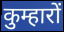
कुम्हारों